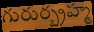
గురుర్బ్రహ్మ